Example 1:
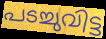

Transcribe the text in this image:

പടച്ചുവിട്ട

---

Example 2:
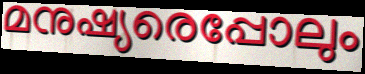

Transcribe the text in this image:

മനുഷ്യരെപ്പോലും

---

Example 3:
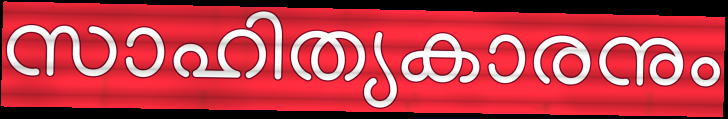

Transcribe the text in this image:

സാഹിത്യകാരനും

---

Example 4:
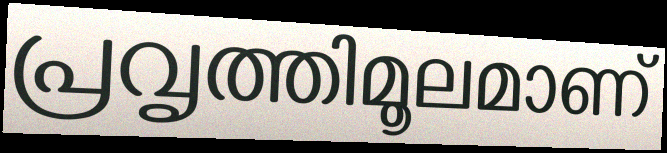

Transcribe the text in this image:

പ്രവൃത്തിമൂലമാണ്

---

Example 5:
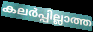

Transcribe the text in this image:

കലർപ്പില്ലാത്ത